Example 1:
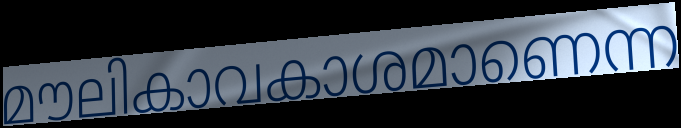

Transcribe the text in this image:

മൗലികാവകാശമാണെന്ന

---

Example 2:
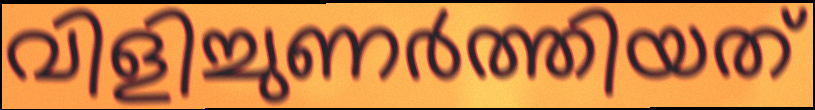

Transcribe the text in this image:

വിളിച്ചുണർത്തിയത്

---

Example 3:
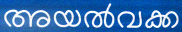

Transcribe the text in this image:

അയൽവക്ക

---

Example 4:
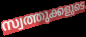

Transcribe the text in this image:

സ്വത്തുക്കളുടെ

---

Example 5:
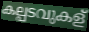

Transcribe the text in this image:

കല്പടവുകള്